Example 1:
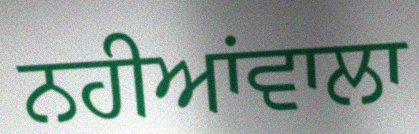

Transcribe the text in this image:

ਨਹੀਆਂਵਾਲਾ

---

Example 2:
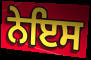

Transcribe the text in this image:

ਨੇਇਸ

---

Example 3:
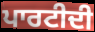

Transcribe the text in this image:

ਪਾਰਟੀਦੀ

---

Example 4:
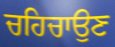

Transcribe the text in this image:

ਚਹਿਚਾਉਣ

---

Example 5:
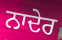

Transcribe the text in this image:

ਨਾਦੇਰ